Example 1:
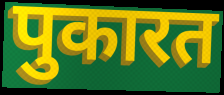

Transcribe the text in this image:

पुकारत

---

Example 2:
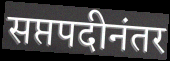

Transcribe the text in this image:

सप्तपदीनंतर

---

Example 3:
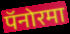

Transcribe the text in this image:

पॅनोरमा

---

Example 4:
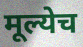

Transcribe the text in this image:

मूल्येच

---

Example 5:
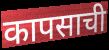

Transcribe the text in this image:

कापसाची